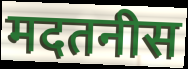
मदतनीस